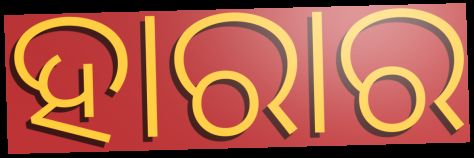
ହାରାର